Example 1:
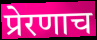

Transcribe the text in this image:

प्रेरणाच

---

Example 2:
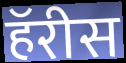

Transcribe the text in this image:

हॅरीस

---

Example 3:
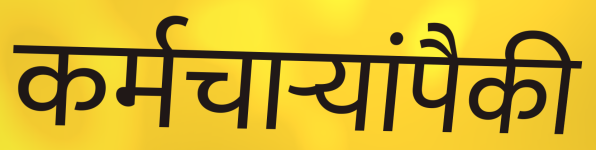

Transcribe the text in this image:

कर्मचार्‍यांपैकी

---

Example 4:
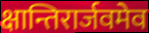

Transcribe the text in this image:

क्षान्तिरार्जवमेव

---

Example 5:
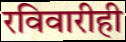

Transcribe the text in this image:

रविवारीही